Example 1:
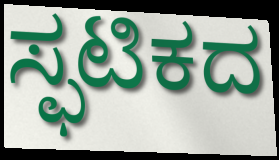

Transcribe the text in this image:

ಸ್ಫಟಿಕದ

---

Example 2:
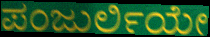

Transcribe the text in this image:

ಪಂಜುರ್ಲಿಯೇ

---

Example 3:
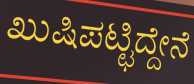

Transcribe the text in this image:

ಖುಷಿಪಟ್ಟಿದ್ದೇನೆ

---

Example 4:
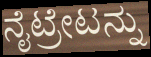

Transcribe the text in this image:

ನೈಟ್ರೇಟನ್ನು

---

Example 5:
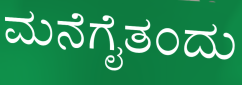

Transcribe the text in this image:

ಮನೆಗೈತಂದು